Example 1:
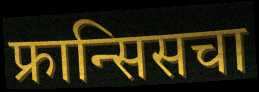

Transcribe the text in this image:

फ्रान्सिसचा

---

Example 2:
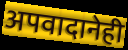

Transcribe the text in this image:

अपवादानेही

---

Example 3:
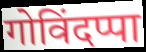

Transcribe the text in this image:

गोविंदप्पा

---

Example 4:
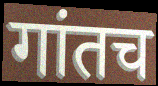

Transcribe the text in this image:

गांतच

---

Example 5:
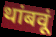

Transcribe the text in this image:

थांबवूं